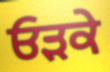
ਓੜਕੇ